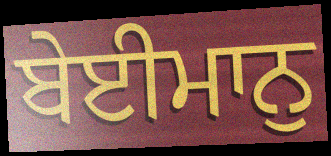
ਬੇਈਮਾਨੁ